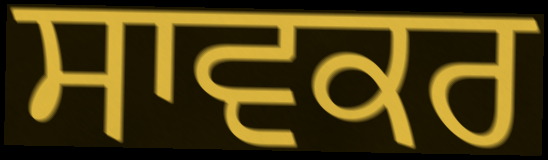
ਸਾਵਕਰ